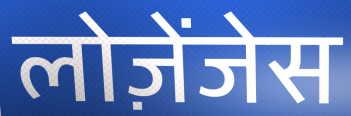
लोज़ेंजेस